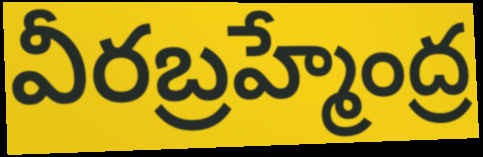
వీరబ్రహ్మేంద్ర